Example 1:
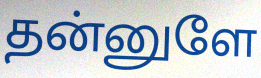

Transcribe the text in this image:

தன்னுளே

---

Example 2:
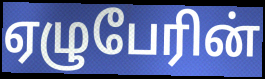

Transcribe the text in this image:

ஏழுபேரின்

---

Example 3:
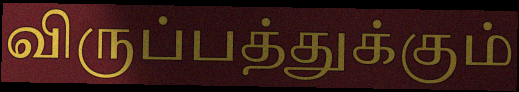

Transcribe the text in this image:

விருப்பத்துக்கும்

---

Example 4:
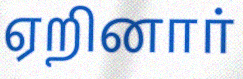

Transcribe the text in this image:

ஏறினார்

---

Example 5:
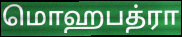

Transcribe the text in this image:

மொஹபத்ரா